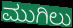
ಮುಗಿಲು